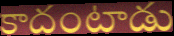
కాదంటాడు